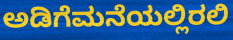
ಅಡಿಗೆಮನೆಯಲ್ಲಿರಲಿ